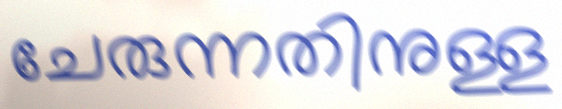
ചേരുന്നതിനുള്ള